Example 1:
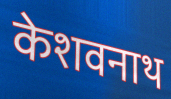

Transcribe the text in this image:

केशवनाथ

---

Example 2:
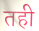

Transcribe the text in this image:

तही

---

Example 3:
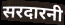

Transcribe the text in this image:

सरदारनी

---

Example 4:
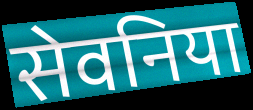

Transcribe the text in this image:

सेवनिया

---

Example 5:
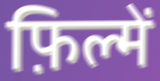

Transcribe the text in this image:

फ़िल्में